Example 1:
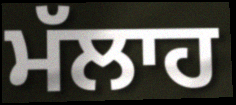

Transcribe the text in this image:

ਮੱਲਾਹ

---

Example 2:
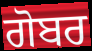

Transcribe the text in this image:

ਗੋਬਰ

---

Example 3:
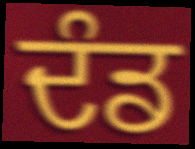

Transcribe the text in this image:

ਦੰਡ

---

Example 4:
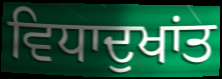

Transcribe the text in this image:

ਵਿਧਾਦੁਖਾਂਤ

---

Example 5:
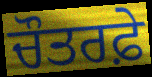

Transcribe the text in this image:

ਚੌਤਰਫ਼ੇ